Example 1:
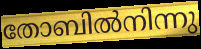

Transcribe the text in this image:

തോബിൽനിന്നു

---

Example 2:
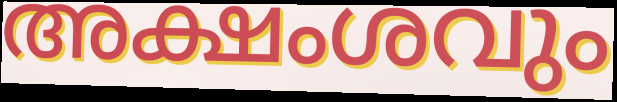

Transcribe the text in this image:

അക്ഷംശവും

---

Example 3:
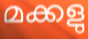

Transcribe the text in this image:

മക്കളു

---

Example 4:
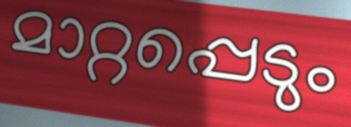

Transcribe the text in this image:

മാറ്റപ്പെടും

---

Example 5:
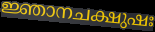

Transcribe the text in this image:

ജ്ഞാനചക്ഷുഷഃ